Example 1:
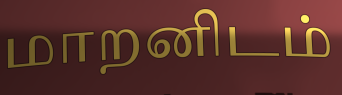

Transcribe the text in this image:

மாறனிடம்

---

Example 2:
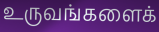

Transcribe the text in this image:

உருவங்களைக்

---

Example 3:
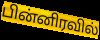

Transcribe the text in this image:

பின்னிரவில்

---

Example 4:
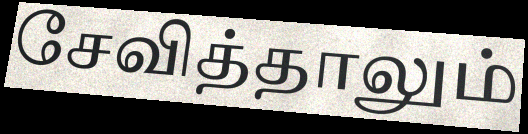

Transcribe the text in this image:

சேவித்தாலும்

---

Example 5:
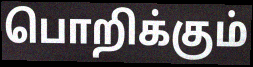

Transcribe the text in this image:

பொறிக்கும்